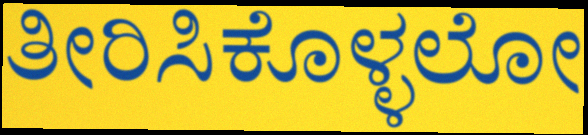
ತೀರಿಸಿಕೊಳ್ಳಲೋ